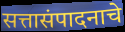
सत्तासंपादनाचे